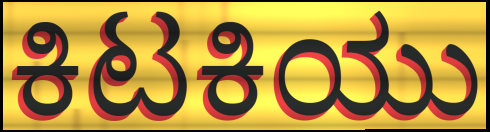
ಕಿಟಕಿಯು